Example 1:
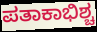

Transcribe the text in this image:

ಪತಾಕಾಭಿಶ್ಚ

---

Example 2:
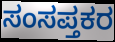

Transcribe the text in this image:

ಸಂಸಪ್ತಕರ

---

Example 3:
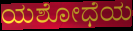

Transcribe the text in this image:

ಯಶೋಧೆಯ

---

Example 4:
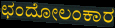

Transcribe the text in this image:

ಛಂದೋಲಂಕಾರ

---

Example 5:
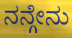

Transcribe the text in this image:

ನನ್ಗೇನು